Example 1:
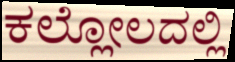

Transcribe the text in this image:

ಕಲ್ಲೋಲದಲ್ಲಿ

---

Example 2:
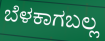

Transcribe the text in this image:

ಬೆಳಕಾಗಬಲ್ಲ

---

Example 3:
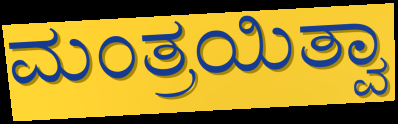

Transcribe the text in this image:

ಮಂತ್ರಯಿತ್ವಾ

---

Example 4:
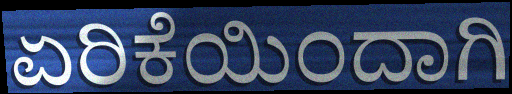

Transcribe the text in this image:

ಏರಿಕೆಯಿಂದಾಗಿ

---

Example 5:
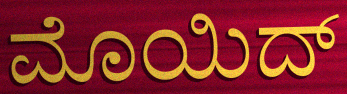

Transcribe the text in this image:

ಮೊಯಿದ್